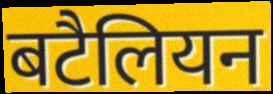
बटैलियन